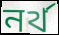
নৰ্থ